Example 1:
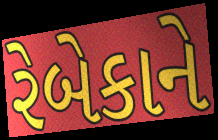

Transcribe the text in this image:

રેબેકાને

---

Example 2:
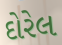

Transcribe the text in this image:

દોરેલ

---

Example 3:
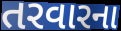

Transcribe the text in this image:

તરવારના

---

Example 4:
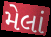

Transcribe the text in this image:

મેલાં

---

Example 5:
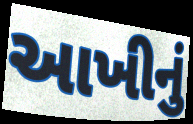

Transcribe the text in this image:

આખીનું